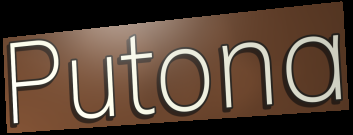
Putona